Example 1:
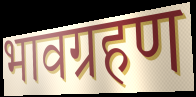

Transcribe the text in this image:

भावग्रहण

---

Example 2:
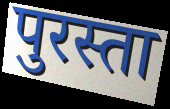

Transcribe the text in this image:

पुरस्ता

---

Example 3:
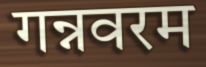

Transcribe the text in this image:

गन्नवरम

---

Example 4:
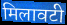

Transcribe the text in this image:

मिलावटी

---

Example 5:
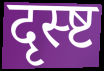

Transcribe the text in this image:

दृस्ष्ट